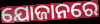
ଯୋଜାନରେ